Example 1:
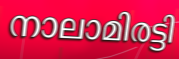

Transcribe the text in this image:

നാലാമിരട്ടി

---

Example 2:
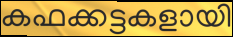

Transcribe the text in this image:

കഫക്കട്ടകളായി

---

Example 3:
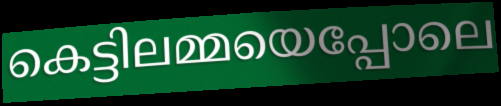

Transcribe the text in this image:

കെട്ടിലമ്മയെപ്പോലെ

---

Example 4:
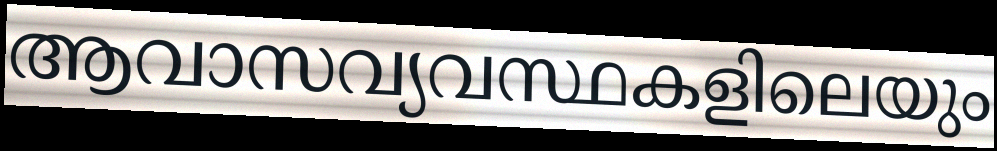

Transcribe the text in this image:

ആവാസവ്യവസ്ഥകളിലെയും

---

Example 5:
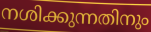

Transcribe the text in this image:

നശിക്കുന്നതിനും